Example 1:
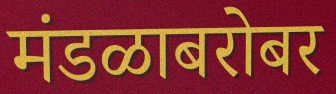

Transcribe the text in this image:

मंडळाबरोबर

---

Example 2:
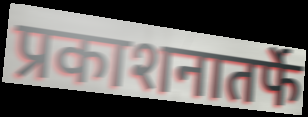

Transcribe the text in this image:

प्रकाशनातर्फे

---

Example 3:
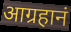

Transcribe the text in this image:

आग्रहानं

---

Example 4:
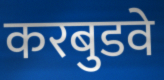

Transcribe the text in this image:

करबुडवे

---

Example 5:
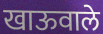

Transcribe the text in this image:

खाऊवाले